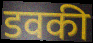
डवकी